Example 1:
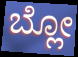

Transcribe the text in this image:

ಬ್ಲೋ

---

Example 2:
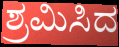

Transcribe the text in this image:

ಶ್ರಮಿಸಿದ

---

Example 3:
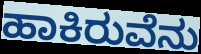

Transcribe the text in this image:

ಹಾಕಿರುವೆನು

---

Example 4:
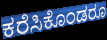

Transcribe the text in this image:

ಕರೆಸಿಕೊಂಡರೂ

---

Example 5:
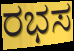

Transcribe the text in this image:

ರಭಸ